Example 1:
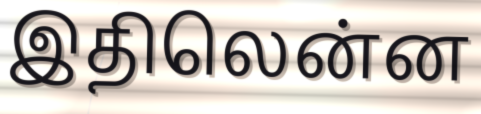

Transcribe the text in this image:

இதிலென்ன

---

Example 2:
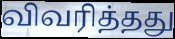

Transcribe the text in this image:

விவரித்தது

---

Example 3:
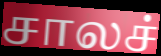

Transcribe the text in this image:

சாலச்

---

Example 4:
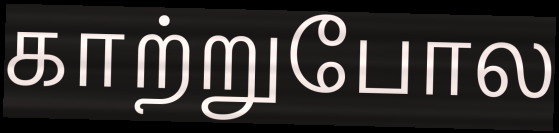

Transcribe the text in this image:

காற்றுபோல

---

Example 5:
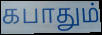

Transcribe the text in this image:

கபாதும்